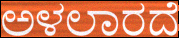
ಅಳಲಾರದೆ